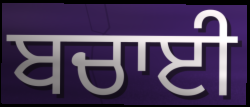
ਬਚਾਈ